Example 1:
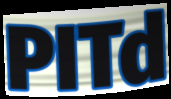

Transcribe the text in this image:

PITd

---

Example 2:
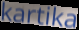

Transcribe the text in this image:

kartika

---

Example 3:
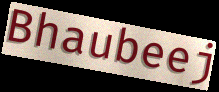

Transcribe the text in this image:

Bhaubeej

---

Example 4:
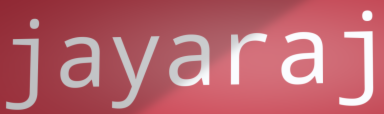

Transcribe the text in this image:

jayaraj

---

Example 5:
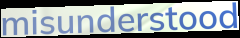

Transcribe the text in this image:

misunderstood